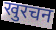
खुरचन